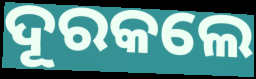
ଦୂରକଲେ